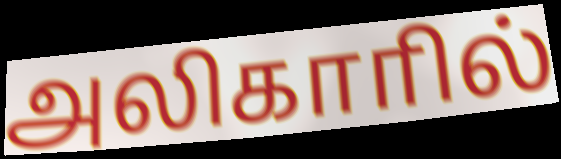
அலிகாரில்